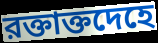
রক্তাক্তদেহে